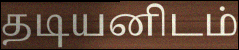
தடியனிடம்